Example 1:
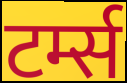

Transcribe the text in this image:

टर्म्स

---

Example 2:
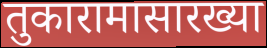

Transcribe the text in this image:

तुकारामासारख्या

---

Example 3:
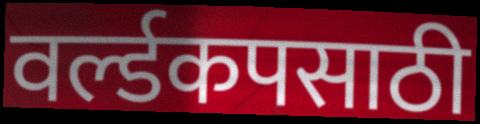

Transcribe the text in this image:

वर्ल्डकपसाठी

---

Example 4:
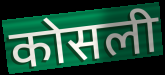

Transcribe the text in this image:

कोसली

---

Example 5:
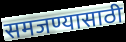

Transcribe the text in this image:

समजण्यासाठी